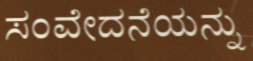
ಸಂವೇದನೆಯನ್ನು